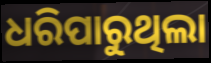
ଧରିପାରୁଥିଲା